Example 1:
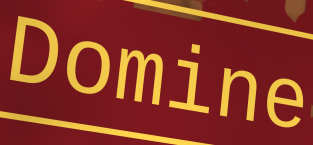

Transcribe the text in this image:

Domine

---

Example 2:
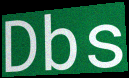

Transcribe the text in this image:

Dbs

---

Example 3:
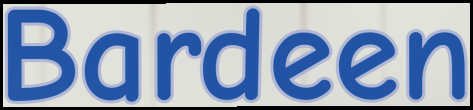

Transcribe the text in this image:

Bardeen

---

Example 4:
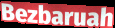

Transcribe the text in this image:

Bezbaruah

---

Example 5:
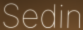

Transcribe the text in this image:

Sedin